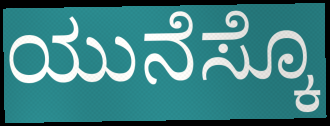
ಯುನೆಸ್ಕೊ